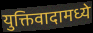
युक्तिवादामध्ये